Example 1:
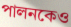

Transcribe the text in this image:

পালনকেও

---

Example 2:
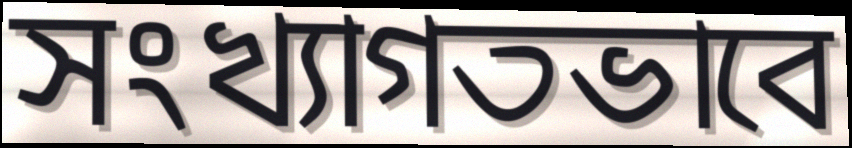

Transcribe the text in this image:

সংখ্যাগতভাবে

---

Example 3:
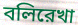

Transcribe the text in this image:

বলিরেখা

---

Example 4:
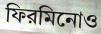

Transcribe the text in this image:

ফিরমিনোও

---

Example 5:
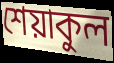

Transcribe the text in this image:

শেয়াকুল